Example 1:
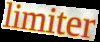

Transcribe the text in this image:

limiter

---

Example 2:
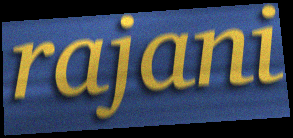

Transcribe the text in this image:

rajani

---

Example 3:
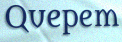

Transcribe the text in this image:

Quepem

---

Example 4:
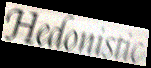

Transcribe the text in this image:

Hedonistic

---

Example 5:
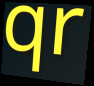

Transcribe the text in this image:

qr